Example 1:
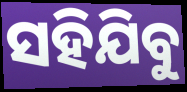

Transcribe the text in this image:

ସହିଯିବୁ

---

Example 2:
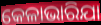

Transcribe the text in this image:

କେଳାଭାରିଯା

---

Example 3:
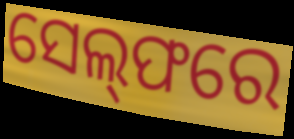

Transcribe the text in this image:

ସେଲ୍‌ଫରେ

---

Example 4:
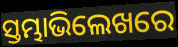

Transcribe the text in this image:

ସ୍ତମ୍ଭାଭିଲେଖରେ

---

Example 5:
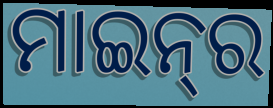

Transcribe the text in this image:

ମାଇନ୍‍ର